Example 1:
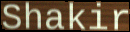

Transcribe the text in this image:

Shakir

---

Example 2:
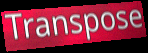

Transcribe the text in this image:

Transpose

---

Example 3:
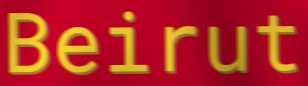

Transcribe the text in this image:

Beirut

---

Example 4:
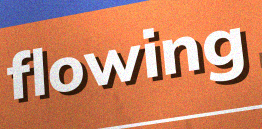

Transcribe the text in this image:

flowing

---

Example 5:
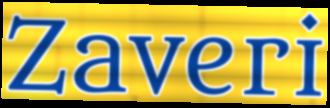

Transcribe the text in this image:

Zaveri